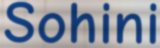
Sohini